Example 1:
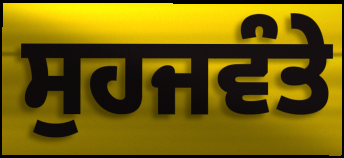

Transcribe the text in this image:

ਸੁਹਜਵੰਤੇ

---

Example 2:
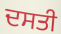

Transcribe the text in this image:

ਦਸਤੀ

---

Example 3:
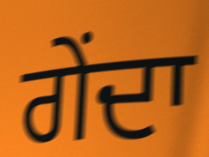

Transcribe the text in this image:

ਗੇਂਦਾ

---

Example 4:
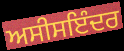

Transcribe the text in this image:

ਅਸੀਸਇੰਦਰ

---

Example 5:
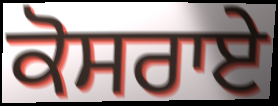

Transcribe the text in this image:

ਕੋਸਰਾਏ